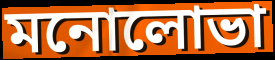
মনোলোভা